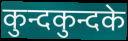
कुन्दकुन्दके